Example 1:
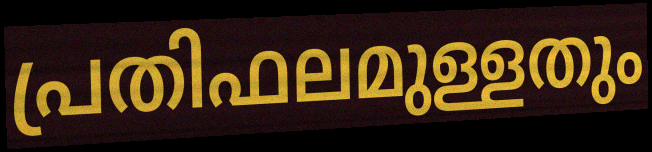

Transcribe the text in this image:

പ്രതിഫലമുള്ളതും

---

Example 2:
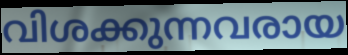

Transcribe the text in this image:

വിശക്കുന്നവരായ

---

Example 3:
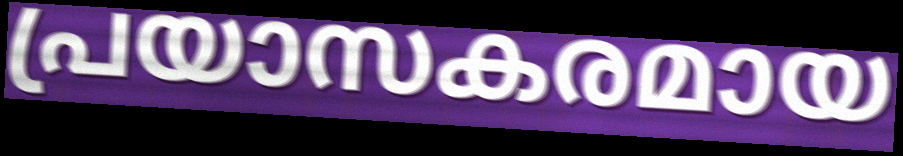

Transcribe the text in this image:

പ്രയാസകരമായ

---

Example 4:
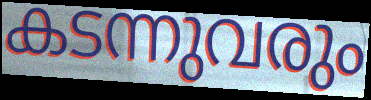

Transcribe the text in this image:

കടന്നുവരും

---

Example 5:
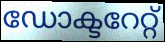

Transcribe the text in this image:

ഡോക്ടറേറ്റ്